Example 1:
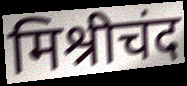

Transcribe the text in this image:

मिश्रीचंद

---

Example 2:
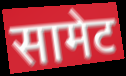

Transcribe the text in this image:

सामेट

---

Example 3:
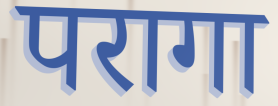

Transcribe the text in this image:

परागा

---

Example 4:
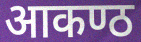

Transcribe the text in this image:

आकण्ठ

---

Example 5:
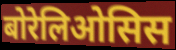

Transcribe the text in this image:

बोरेलिओसिस